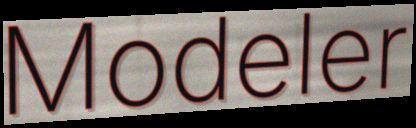
Modeler